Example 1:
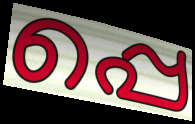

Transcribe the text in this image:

പ്പെ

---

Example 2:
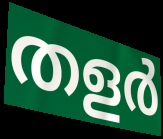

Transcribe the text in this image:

തളർ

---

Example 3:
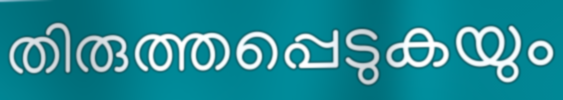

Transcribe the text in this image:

തിരുത്തപ്പെടുകയും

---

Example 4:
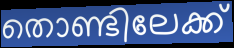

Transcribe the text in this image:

തൊണ്ടിലേക്ക്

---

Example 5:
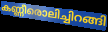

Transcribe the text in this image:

കണ്ണീരൊലിച്ചിറങ്ങി